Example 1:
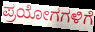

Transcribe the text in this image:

ಪ್ರಯೋಗಗಳಿಗೆ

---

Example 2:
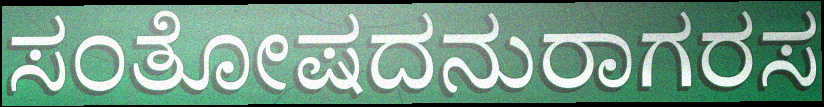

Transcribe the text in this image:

ಸಂತೋಷದನುರಾಗರಸ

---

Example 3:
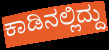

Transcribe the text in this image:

ಕಾಡಿನಲ್ಲಿದ್ದು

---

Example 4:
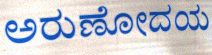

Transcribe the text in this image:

ಅರುಣೋದಯ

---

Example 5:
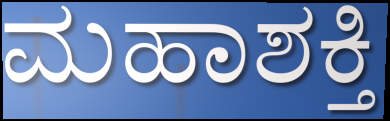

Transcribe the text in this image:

ಮಹಾಶಕ್ತಿ